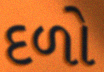
દળો